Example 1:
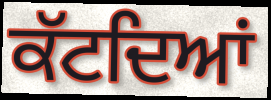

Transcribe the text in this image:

ਕੱਟਦਿਆਂ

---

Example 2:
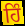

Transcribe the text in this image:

ਹਿੰ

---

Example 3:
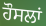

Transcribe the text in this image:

ਹੌਸਲਾਂ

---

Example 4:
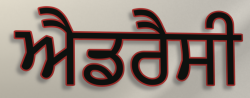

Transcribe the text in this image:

ਐਡਰੈਸੀ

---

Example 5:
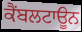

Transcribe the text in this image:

ਕੈਂਬਲਟਾਊਨ